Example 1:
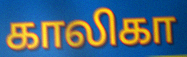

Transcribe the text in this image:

காலிகா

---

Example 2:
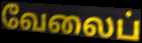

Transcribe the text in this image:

வேலைப்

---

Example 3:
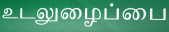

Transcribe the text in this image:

உடலுழைப்பை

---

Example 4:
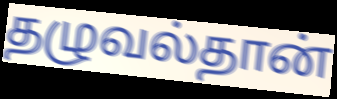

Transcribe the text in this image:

தழுவல்தான்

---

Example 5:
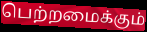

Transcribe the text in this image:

பெற்றமைக்கும்